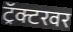
ट्रॅक्टरवर